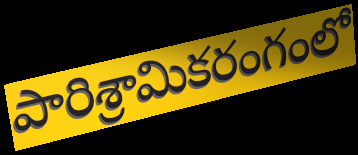
పారిశ్రామికరంగంలో